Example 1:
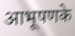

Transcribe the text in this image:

आभूषणके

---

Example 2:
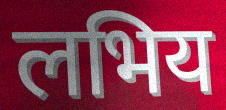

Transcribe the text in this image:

लभिय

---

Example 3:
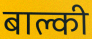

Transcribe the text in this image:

बाल्की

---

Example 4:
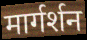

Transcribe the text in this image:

मार्गर्शन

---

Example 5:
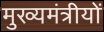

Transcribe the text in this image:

मुख्यमंत्रीयों